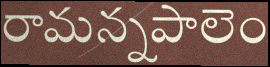
రామన్నపాలెం